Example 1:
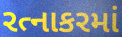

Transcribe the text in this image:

રત્નાકરમાં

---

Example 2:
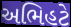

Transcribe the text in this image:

અભિહટે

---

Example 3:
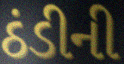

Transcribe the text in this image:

ઠંડીની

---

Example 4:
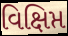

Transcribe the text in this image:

વિક્ષિપ્ત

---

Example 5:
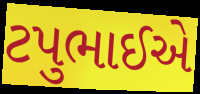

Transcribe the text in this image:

ટપુભાઈએ